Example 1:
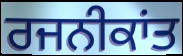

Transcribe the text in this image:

ਰਜਨੀਕਾਂਤ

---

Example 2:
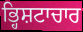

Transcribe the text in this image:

ਭ੍ਹਿਸ਼ਟਾਚਾਰ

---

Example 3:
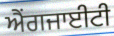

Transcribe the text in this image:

ਐਂਗਜਾਈਟੀ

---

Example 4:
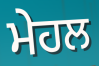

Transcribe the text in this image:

ਮੇਹਲ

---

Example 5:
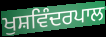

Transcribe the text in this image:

ਖੁਸ਼ਵਿੰਦਰਪਾਲ